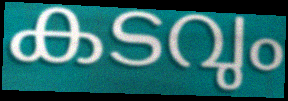
കടവും